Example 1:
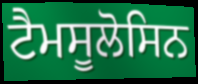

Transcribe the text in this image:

ਟੈਮਸੂਲੋਸਿਨ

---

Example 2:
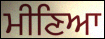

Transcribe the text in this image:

ਮੀਣਿਆ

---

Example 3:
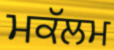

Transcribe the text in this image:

ਮਕੱਲਮ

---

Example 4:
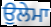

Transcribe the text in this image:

ਉਲੇਮਾ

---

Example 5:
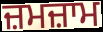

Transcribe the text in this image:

ਜ਼ਮਜ਼ਾਮ